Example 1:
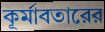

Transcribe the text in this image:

কূর্মাবতারের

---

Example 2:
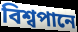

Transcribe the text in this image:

বিশ্বপানে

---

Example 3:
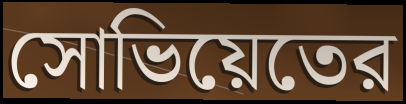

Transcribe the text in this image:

সোভিয়েতের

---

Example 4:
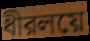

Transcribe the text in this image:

ধীরলয়ে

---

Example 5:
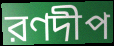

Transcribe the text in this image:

রণদীপ